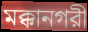
মক্কানগরী